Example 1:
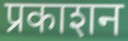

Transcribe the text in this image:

प्रकाशन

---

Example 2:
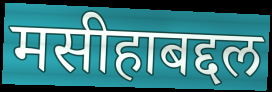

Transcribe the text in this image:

मसीहाबद्दल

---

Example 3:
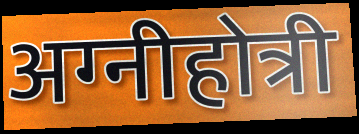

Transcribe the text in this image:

अग्नीहोत्री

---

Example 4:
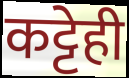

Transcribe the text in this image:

कट्टेही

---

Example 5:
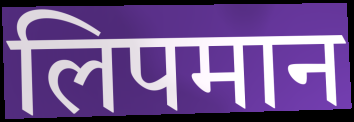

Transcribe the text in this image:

लिपमान